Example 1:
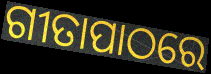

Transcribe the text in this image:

ଗୀତାପାଠରେ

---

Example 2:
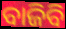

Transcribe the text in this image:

ବାଜିବି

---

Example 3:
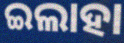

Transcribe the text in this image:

ଇଲାହା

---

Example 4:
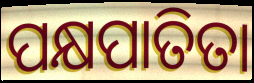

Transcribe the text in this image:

ପକ୍ଷପାତିତା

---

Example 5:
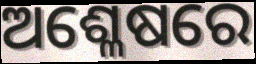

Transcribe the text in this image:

ଅଶ୍ଳେଷରେ